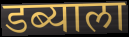
डब्याला